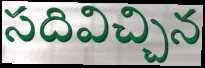
సదివిచ్చిన